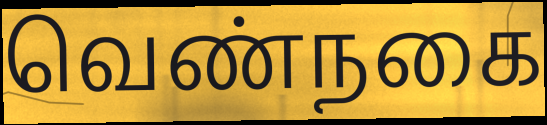
வெண்நகை